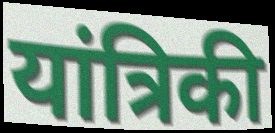
यांत्रिकी